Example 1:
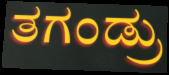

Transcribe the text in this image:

ತಗಂಡ್ರು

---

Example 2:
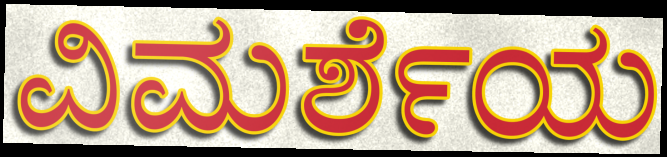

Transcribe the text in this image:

ವಿಮರ್ಶೆಯ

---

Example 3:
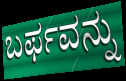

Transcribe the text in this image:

ಬರ್ಫವನ್ನು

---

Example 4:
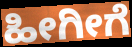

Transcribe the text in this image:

ಹೀಗೀಗೆ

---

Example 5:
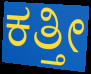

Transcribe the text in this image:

ಕತ್ತೀ